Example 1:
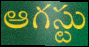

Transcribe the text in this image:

ఆగస్టు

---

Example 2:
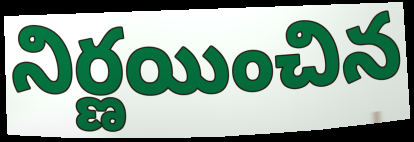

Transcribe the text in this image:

నిర్ణయించిన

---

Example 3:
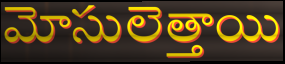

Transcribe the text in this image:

మోసులెత్తాయి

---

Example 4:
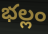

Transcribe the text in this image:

భల్లం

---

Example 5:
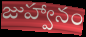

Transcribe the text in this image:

జుహ్వానం